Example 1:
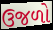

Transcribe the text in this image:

ઉજળો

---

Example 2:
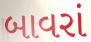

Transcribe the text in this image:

બાવરાં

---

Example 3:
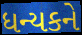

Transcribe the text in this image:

ધન્યકને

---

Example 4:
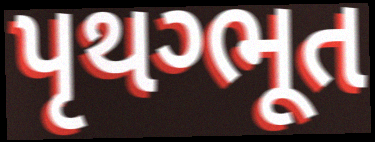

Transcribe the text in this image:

પૃથગ્ભૂત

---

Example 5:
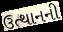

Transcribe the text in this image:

ઉત્થાનની